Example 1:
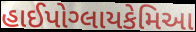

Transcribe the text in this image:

હાઈપોગ્લાયકેમિઆ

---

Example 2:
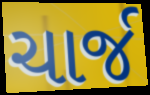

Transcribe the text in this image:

ચાર્જ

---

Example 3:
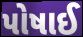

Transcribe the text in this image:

પોષાઈ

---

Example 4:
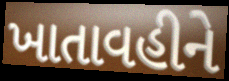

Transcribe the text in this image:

ખાતાવહીને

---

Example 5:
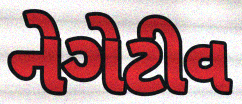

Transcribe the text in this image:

નેગેટીવ